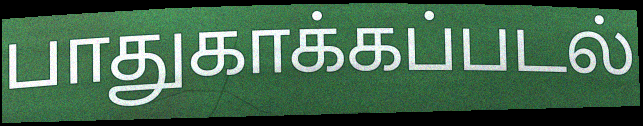
பாதுகாக்கப்படல்